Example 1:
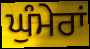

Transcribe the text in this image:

ਘੁੰਮੇਰਾਂ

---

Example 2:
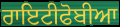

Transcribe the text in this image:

ਰਾਇਟੀਫੋਬੀਆ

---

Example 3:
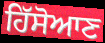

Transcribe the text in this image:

ਹਿੱਸੋਆਣ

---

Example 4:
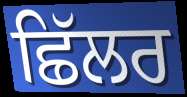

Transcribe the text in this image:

ਛਿੱਲਰ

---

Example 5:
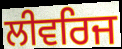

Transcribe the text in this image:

ਲੀਵਰਿਜ